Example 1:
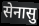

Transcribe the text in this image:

सेनासु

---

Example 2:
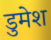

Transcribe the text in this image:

डुमेश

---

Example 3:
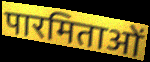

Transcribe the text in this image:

पारमिताओं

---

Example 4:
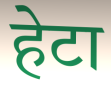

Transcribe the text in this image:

हेटा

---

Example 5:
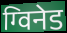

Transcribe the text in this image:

ग्विनेड